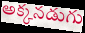
అక్కనడుగు